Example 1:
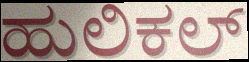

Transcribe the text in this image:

ಹುಲಿಕಲ್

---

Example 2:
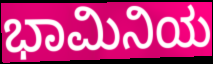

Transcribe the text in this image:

ಭಾಮಿನಿಯ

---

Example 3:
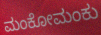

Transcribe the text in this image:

ಮಂಕೋಮಂಕು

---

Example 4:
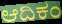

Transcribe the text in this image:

ಆದಿಕಂ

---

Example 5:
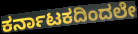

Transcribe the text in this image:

ಕರ್ನಾಟಕದಿಂದಲೇ